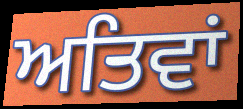
ਅਤਿਵਾਂ